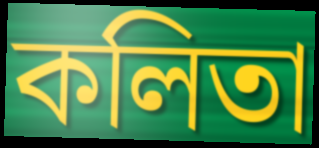
কলিতা